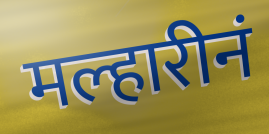
मल्हारीनं